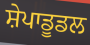
ਸ਼ੇਪਾਡੂਡਲ